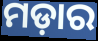
ମଡ଼ାର